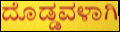
ದೊಡ್ಡವಳಾಗಿ